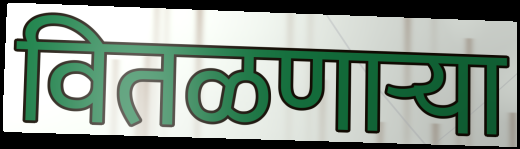
वितळणाऱ्या